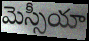
మెస్సీయా